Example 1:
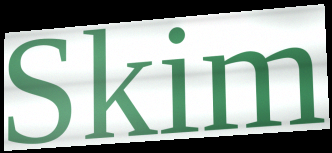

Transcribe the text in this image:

Skim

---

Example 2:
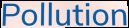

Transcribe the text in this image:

Pollution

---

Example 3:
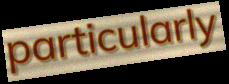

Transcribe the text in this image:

particularly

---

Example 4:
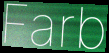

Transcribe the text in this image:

Farb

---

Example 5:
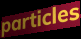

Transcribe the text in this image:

particles